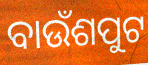
ବାଉଁଶପୁଟ